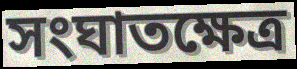
সংঘাতক্ষেত্র